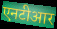
एनटीआर